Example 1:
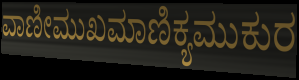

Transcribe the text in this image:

ವಾಣೀಮುಖಮಾಣಿಕ್ಯಮುಕುರ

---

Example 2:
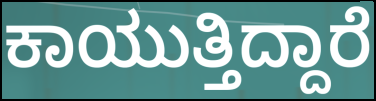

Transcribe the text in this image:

ಕಾಯುತ್ತಿದ್ದಾರೆ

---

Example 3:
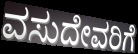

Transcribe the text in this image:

ವಸುದೇವರಿಗೆ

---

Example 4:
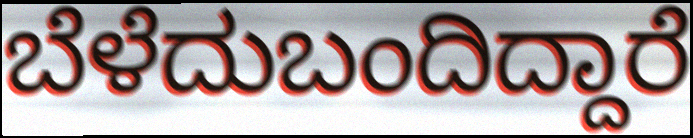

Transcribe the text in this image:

ಬೆಳೆದುಬಂದಿದ್ದಾರೆ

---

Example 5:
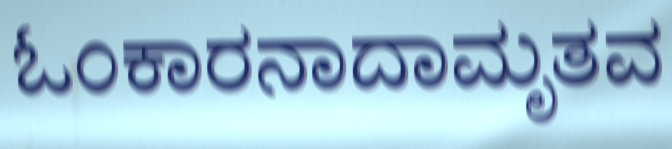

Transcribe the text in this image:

ಓಂಕಾರನಾದಾಮೃತವ